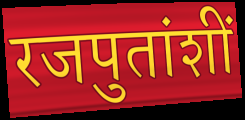
रजपुतांशीं